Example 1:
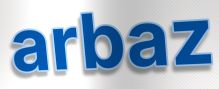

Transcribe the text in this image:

arbaz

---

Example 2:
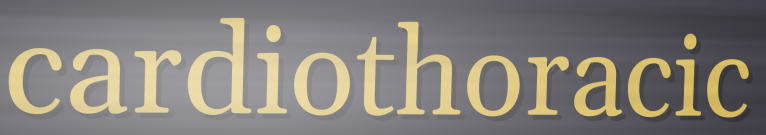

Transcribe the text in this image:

cardiothoracic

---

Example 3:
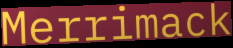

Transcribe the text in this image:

Merrimack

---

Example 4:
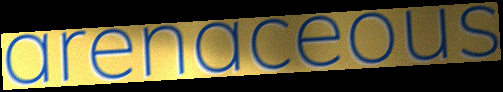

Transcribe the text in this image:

arenaceous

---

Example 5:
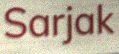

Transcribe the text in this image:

Sarjak